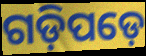
ଗଡ଼ିପଡ଼େ